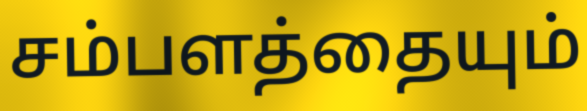
சம்பளத்தையும்